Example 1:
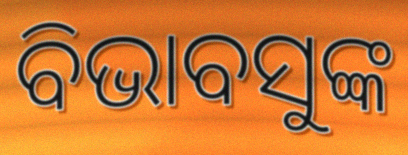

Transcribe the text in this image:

ବିଭାବସୁଙ୍କ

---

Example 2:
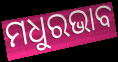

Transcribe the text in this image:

ମଧୁରଭାବ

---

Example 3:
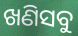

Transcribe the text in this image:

ଖଣିସବୁ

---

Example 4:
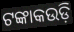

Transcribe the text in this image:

ଟଙ୍କାକଉଡ଼ି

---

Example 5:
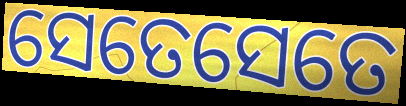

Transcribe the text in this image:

ସେତେସେତେ